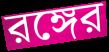
রঙ্গের